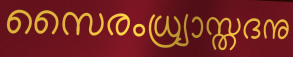
സൈരംധ്ര്യാസ്തദനു